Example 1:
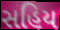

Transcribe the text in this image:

સહિય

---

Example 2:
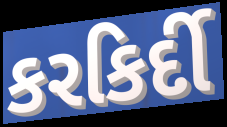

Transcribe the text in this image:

કરકિર્દી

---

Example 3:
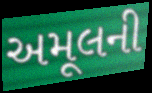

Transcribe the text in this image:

અમૂલની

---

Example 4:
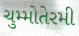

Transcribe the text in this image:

ચુમ્મોતેરમી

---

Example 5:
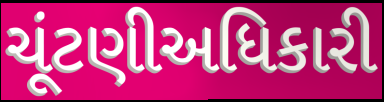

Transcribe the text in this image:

ચૂંટણીઅધિકારી